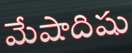
మేషాదిషు